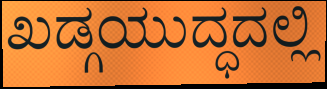
ಖಡ್ಗಯುದ್ಧದಲ್ಲಿ